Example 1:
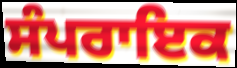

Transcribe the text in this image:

ਸੰਪਰਾਇਕ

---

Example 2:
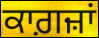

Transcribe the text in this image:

ਕਾਗ਼ਜ਼ਾਂ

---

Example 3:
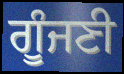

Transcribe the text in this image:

ਗੂੰਜਣੀ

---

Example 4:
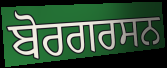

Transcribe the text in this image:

ਬੋਰਗਰਸਨ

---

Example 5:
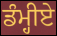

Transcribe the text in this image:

ਡੰਮ੍ਹੀਏ